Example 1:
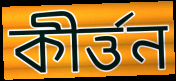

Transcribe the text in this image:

কীৰ্ত্তন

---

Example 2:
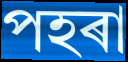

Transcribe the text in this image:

পহৰা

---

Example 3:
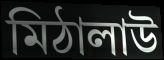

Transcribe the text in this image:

মিঠালাউ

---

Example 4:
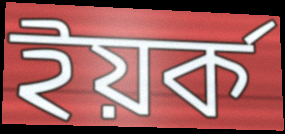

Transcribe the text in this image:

ইয়ৰ্ক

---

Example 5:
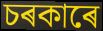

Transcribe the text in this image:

চৰকাৰে